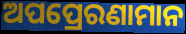
ଅପପ୍ରେରଣାମାନ